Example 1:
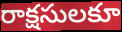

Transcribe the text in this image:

రాక్షసులకూ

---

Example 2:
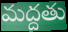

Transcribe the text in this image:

మద్దతు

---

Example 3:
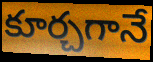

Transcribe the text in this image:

కూర్చగానే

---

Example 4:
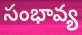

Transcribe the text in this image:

సంభావ్య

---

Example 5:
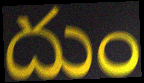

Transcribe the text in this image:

దుం